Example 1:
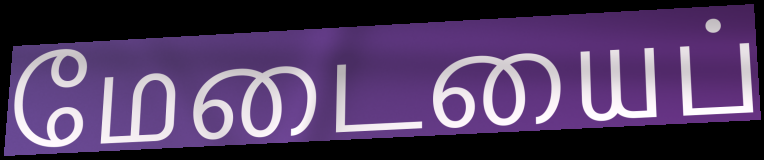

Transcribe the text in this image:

மேடையைப்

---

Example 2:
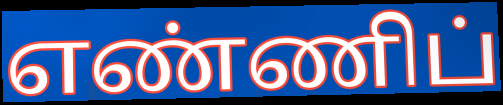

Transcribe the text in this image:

எண்ணிப்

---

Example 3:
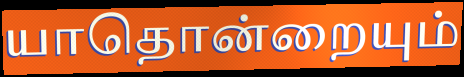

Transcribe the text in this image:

யாதொன்றையும்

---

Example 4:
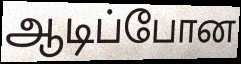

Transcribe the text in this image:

ஆடிப்போன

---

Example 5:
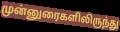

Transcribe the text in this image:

முன்னுரைகளிலிருந்து